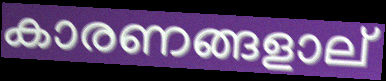
കാരണങ്ങളാല്